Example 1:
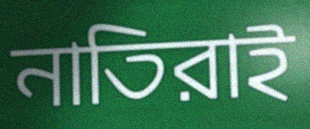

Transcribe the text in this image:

নাতিরাই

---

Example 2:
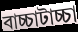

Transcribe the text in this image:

বাচ্চাটাচ্চা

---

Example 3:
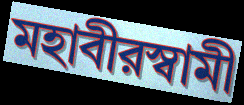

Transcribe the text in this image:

মহাবীরস্বামী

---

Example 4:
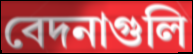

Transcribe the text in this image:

বেদনাগুলি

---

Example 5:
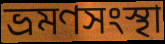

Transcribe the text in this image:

ভ্রমণসংস্থা